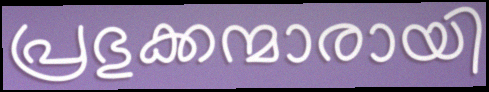
പ്രഭുക്കന്മാരായി